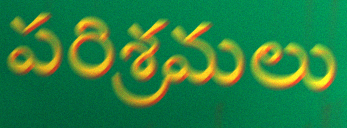
పరిశ్రమలు